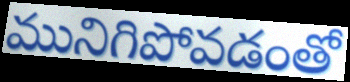
మునిగిపోవడంతో